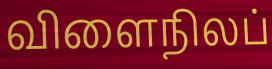
விளைநிலப்